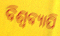
ବିଶ୍ବବ୍ୟାପି